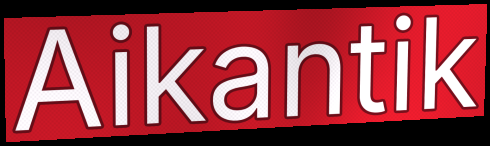
Aikantik